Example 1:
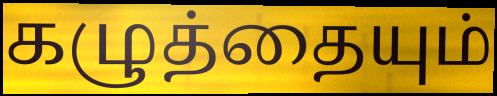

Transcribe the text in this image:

கழுத்தையும்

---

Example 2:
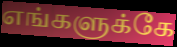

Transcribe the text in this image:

எங்களுக்கே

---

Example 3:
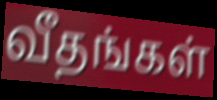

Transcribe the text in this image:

வீதங்கள்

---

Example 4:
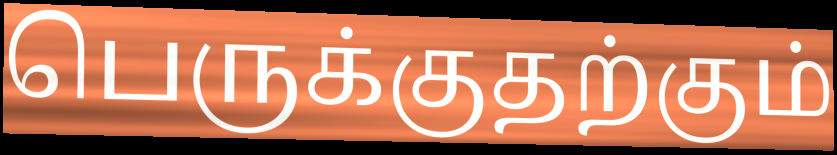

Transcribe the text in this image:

பெருக்குதற்கும்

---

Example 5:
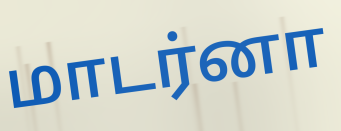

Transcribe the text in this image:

மாடர்னா